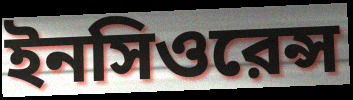
ইনসিওরেন্স